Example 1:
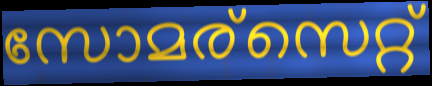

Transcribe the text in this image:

സോമര്സെറ്റ്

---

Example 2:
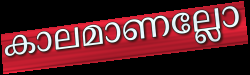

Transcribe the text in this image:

കാലമാണല്ലോ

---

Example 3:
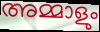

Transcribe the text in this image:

അമ്മാളും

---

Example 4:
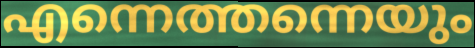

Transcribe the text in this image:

എന്നെത്തന്നെയും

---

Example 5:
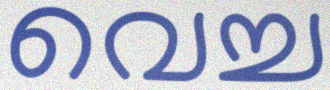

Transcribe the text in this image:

വെച്ച